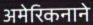
अमेरिकनाने